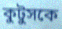
কুটুসকে